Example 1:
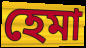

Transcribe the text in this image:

হেমা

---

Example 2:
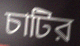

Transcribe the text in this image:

চাটির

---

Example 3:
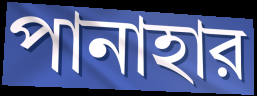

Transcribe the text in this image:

পানাহার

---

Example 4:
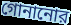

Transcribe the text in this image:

গোনানোর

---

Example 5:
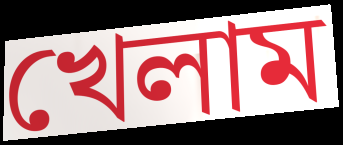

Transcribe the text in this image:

খেলাম